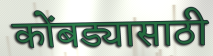
कोंबड्यासाठी